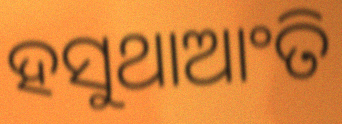
ହସୁଥାଆଂତି